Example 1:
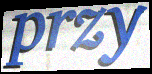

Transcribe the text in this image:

przy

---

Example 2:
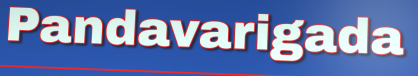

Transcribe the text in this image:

Pandavarigada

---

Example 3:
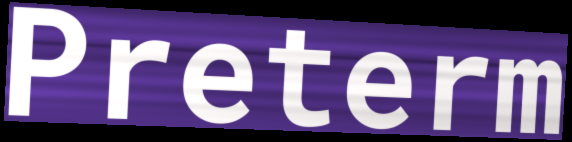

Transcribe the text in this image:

Preterm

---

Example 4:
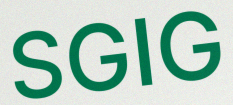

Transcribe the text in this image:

SGIG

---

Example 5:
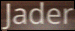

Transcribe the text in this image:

Jader